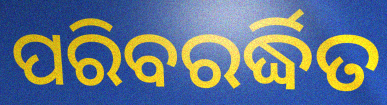
ପରିବରର୍ଦ୍ଧିତ